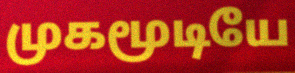
முகமூடியே